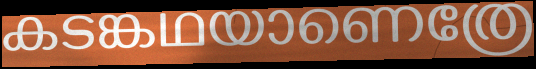
കടങ്കഥയാണെത്രേ